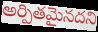
అర్పితమైనదని